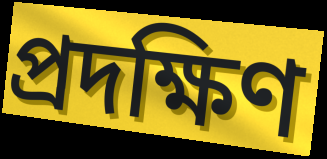
প্রদক্ষিণ